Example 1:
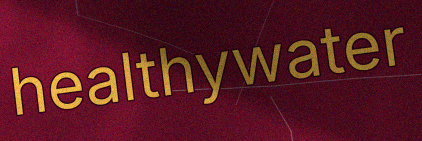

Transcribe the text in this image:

healthywater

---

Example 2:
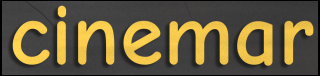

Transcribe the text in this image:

cinemar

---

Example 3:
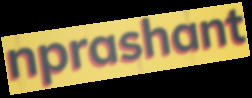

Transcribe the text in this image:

nprashant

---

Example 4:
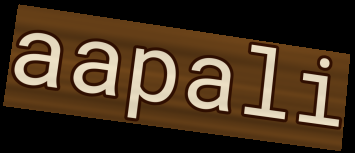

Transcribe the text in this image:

aapali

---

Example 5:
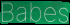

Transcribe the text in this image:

Babes